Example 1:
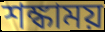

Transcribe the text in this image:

শঙ্কাময়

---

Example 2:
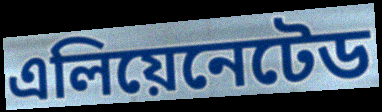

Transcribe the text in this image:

এলিয়েনেটেড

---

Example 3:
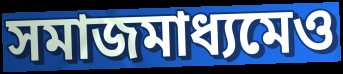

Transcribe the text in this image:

সমাজমাধ্যমেও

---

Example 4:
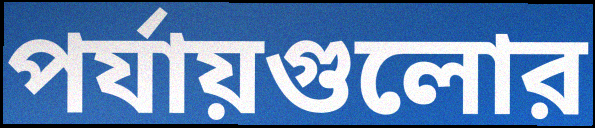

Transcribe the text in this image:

পর্যায়গুলোর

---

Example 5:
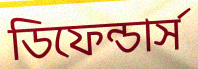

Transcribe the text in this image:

ডিফেন্ডার্স